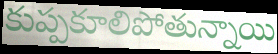
కుప్పకూలిపోతున్నాయి